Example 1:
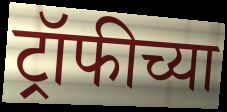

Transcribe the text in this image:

ट्रॉफीच्या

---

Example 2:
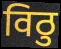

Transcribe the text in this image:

विठु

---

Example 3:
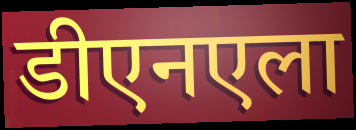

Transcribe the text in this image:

डीएनएला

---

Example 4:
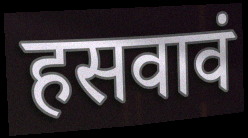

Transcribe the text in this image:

हसवावं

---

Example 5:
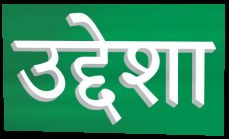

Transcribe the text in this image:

उद्देशा